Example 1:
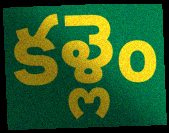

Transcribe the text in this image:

కళ్లెం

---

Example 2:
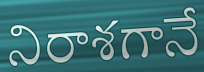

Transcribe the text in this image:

నిరాశగానే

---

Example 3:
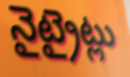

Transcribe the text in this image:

నైట్రైట్లు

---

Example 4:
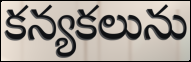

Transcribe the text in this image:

కన్యకలును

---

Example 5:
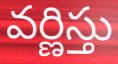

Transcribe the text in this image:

వర్ణిస్తు